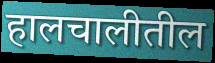
हालचालीतील